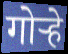
गोऱ्हे